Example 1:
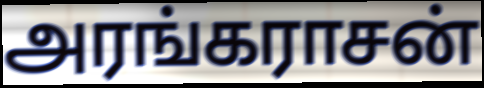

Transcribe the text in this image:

அரங்கராசன்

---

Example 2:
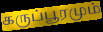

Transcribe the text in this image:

கருப்பூரமும்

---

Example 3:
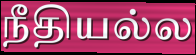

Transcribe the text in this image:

நீதியல்ல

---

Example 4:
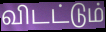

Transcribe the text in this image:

விடட்டும்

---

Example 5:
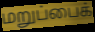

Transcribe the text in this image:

மறுப்பைக்